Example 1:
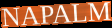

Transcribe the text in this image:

NAPALM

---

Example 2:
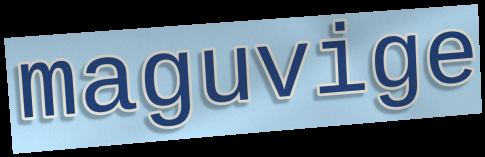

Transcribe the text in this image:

maguvige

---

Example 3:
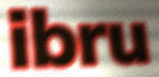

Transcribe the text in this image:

ibru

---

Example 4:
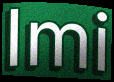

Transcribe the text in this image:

Imi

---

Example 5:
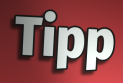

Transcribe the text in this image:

Tipp